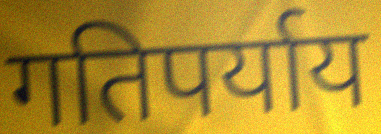
गतिपर्याय